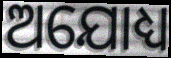
ଅଯୋଧ୍ୟ